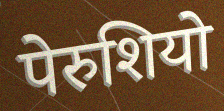
पेरुशियो